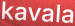
kavala